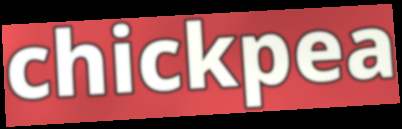
chickpea